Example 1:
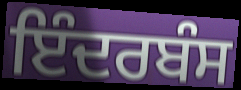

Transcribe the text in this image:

ਇੰਦਰਬੰਸ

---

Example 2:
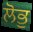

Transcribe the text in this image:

ਲੋਭੁ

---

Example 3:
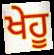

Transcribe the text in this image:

ਖੇਹੂ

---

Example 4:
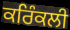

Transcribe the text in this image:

ਕਰਿੰਕਲੀ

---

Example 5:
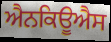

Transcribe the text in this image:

ਐਨਕਿਊਐਸ